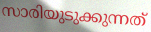
സാരിയുടുക്കുന്നത്